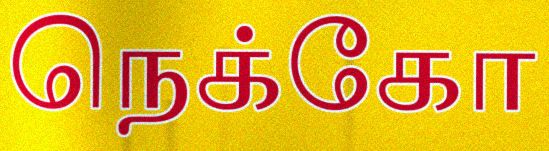
நெக்கோ